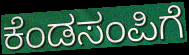
ಕೆಂಡಸಂಪಿಗೆ